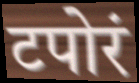
टपोरं